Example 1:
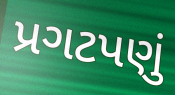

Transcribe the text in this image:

પ્રગટપણું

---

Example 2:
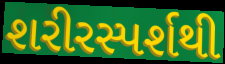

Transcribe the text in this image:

શરીરસ્પર્શથી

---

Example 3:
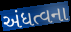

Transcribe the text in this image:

અંધત્વના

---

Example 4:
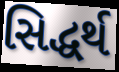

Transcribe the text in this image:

સિદ્ધર્થ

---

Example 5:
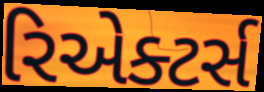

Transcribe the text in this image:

રિએક્ટર્સ